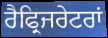
ਰੈਫ੍ਰਿਜਰੇਟਰਾਂ